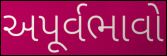
અપૂર્વભાવો